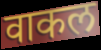
वाकल